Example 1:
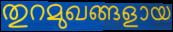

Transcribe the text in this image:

തുറമുഖങ്ങളായ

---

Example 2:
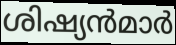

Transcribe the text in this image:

ശിഷ്യൻമാർ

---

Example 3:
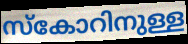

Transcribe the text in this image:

സ്കോറിനുള്ള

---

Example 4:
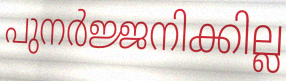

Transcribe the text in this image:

പുനർജ്ജനിക്കില്ല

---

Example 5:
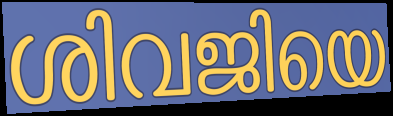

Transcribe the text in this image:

ശിവജിയെ